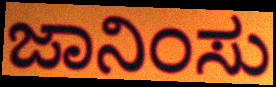
ಜಾನಿಂಸು